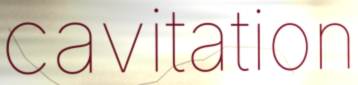
cavitation